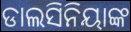
ଡାଲସିନିୟାଙ୍କ